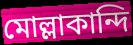
মোল্লাকান্দি